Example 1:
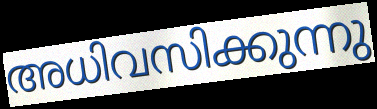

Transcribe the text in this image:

അധിവസിക്കുന്നു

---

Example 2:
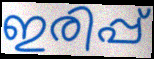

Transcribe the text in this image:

ഇരിപ്പ്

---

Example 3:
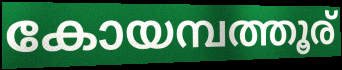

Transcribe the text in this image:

കോയമ്പത്തൂര്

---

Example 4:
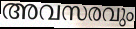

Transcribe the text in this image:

അവസരവും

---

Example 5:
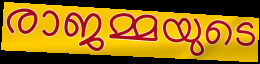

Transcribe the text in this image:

രാജമ്മയുടെ